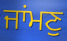
ਜਾਂਮਣੁ